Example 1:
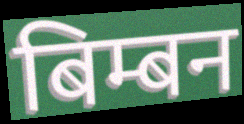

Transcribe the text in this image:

बिम्बन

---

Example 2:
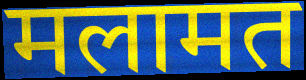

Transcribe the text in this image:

मलामत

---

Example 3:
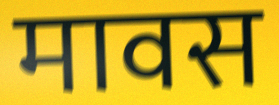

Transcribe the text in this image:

मावस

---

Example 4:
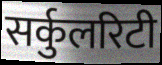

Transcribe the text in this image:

सर्कुलरिटी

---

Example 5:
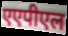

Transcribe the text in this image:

एएपीएल